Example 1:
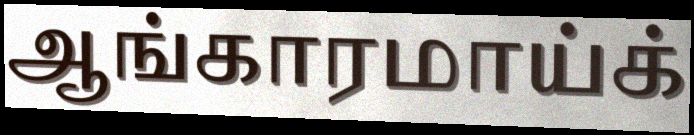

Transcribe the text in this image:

ஆங்காரமாய்க்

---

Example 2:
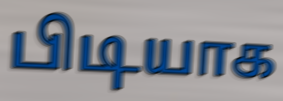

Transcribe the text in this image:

பிடியாக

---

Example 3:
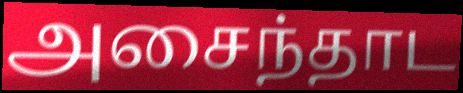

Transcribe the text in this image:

அசைந்தாட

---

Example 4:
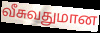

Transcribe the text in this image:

வீசுவதுமான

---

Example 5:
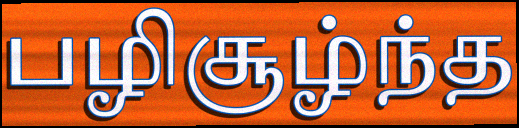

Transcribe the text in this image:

பழிசூழ்ந்த